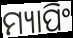
ମ୍ୟାପିଂ